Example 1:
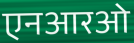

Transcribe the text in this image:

एनआरओ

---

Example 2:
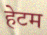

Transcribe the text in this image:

हेटम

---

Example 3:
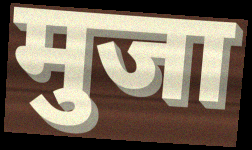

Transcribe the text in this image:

मुजा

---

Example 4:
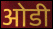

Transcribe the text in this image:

ओडी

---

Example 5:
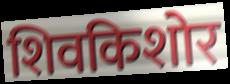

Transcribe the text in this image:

शिवकिशोर